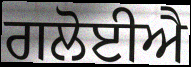
ਗਲੋਈਐ